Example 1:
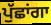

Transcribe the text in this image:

ਪੁੱਛਾਂਗਾ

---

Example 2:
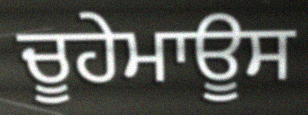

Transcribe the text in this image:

ਚੂਹੇਮਾਊਸ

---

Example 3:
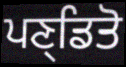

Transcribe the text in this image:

ਪਣ੍ਡਿਤੋ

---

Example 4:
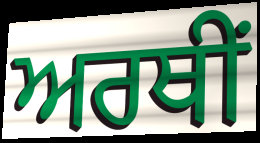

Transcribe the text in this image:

ਅਰਥੀਂ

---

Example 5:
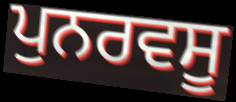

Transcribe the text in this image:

ਪੁਨਰਵਸੂ